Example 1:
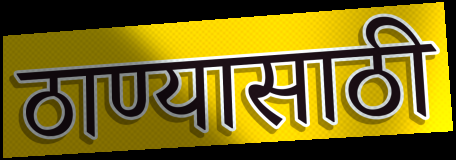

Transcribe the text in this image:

ठाण्यासाठी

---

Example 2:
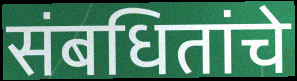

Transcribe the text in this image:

संबधितांचे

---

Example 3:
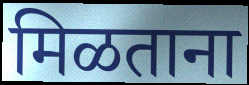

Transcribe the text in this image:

मिळताना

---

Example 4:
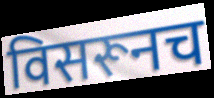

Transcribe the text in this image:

विसरूनच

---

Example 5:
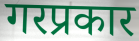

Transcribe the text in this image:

गरप्रकार